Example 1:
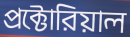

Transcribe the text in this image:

প্রক্টোরিয়াল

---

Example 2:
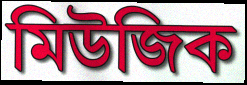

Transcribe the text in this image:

মিউজিক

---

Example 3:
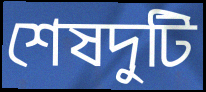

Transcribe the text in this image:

শেষদুটি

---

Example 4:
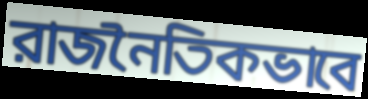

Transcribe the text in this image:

রাজনৈতিকভাবে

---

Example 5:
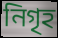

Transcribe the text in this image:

নিগৃহ